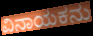
ವಿನಾಯಕನು